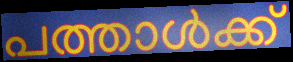
പത്താൾക്ക്